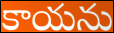
కాయను